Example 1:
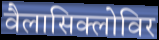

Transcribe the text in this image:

वैलासिक्लोविर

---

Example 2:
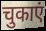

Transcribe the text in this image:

चुकाएं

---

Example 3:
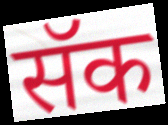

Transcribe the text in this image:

सॅक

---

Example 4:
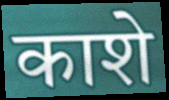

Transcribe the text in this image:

काशे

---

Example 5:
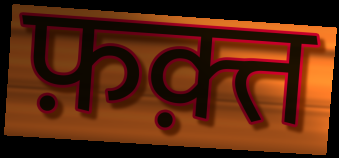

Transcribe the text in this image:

फ़क़्त